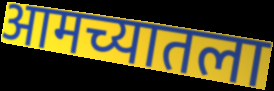
आमच्यातला